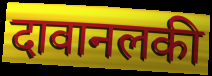
दावानलकी